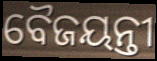
ବୈଜୟନ୍ତୀ